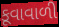
કૂવાવાળી